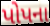
પોપના